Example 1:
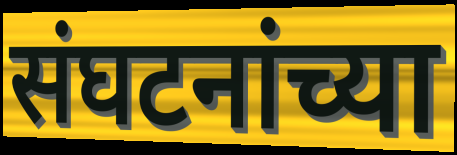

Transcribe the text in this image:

संघटनांच्या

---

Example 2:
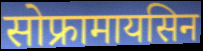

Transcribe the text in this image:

सोफ्रामायसिन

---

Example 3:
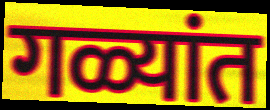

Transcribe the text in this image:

गळ्यांत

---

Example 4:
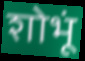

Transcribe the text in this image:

शोभूं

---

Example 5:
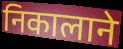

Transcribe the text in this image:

निकालाने